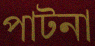
পাটনা